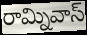
రామ్నివాస్